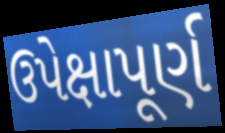
ઉપેક્ષાપૂર્ણ